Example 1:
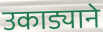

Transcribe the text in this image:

उकाड्याने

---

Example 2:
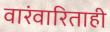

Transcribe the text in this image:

वारंवारिताही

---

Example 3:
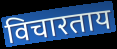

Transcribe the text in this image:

विचारताय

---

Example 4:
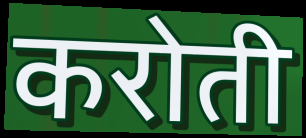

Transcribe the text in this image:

करोती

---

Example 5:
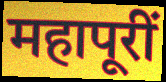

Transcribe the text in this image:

महापूरीं